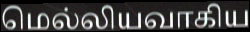
மெல்லியவாகிய